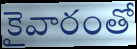
కైవారంతో